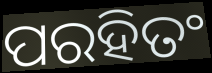
ପରହିତଂ